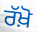
ਰੱਖ਼ੋ